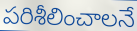
పరిశీలించాలనే